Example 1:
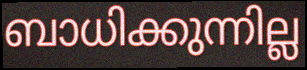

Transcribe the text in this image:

ബാധിക്കുന്നില്ല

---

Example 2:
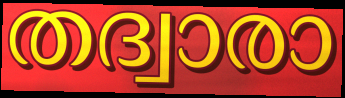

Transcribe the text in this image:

തദ്വാരാ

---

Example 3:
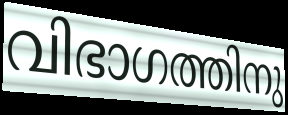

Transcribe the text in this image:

വിഭാഗത്തിനു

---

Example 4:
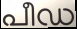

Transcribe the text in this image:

പീഡ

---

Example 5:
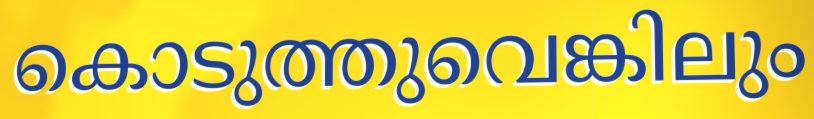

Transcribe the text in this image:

കൊടുത്തുവെങ്കിലും